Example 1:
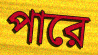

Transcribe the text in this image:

পারে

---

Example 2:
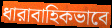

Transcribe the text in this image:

ধারাবাহিকভাবে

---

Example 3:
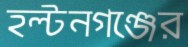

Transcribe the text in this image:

হল্টনগঞ্জের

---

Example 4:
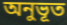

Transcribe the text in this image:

অনুভূত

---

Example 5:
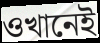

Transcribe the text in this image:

ওখানেই